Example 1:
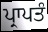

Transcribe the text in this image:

ਪ੍ਰਾਪਤੰ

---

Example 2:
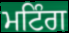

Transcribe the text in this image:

ਮਟਿੰਗ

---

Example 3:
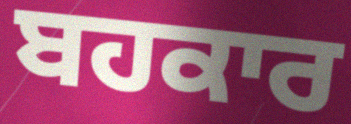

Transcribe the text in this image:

ਬਹਕਾਰ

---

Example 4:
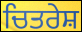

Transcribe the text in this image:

ਚਿਤਰੇਸ਼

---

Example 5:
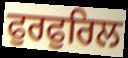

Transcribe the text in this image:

ਫੁਰਫੁਰਿਲ